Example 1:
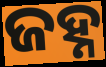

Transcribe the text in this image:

ଜହ୍ନ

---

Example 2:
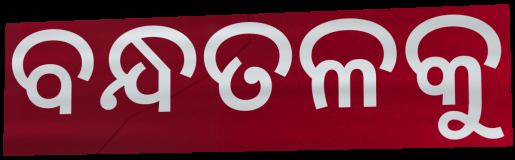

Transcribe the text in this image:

ବନ୍ଧତଳକୁ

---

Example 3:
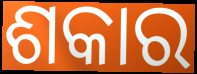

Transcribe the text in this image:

ଶକାର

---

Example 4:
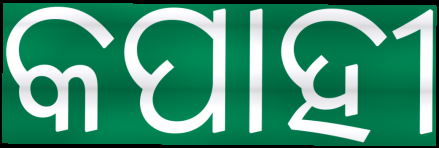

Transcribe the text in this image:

କପାହୀ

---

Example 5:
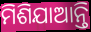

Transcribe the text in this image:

ମିଶିଯାଆନ୍ତି